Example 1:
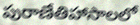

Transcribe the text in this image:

పురాణేతిహాసాలలో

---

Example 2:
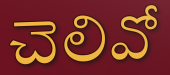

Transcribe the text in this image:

చెలివో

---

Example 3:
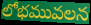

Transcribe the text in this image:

లోభమువలన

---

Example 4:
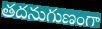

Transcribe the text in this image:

తదనుగుణంగా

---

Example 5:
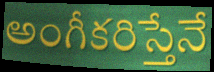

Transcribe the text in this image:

అంగీకరిస్తేనే